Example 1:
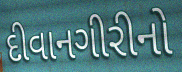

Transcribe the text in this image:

દીવાનગીરીનો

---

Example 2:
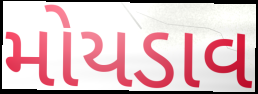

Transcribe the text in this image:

મોયડાવ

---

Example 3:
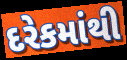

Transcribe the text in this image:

દરેકમાંથી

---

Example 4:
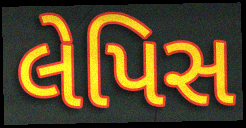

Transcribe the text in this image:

લેપિસ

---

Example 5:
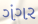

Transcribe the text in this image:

ગંગર